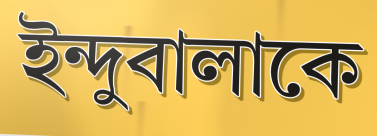
ইন্দুবালাকে